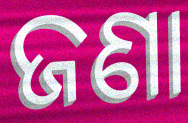
ଜଣା